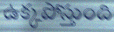
ఉక్కపోస్తుంది